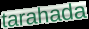
tarahada